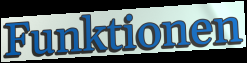
Funktionen